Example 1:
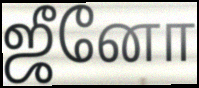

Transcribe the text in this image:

ஜீனோ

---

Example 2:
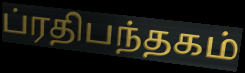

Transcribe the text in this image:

ப்ரதிபந்தகம்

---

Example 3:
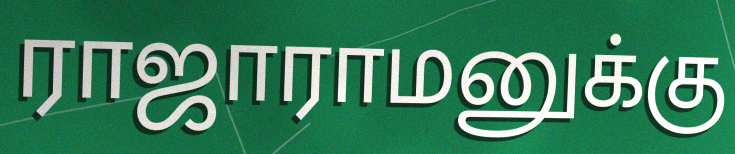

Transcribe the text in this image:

ராஜாராமனுக்கு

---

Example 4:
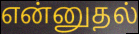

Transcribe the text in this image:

என்னுதல்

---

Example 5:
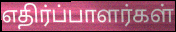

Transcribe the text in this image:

எதிர்ப்பாளர்கள்